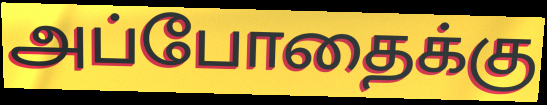
அப்போதைக்கு